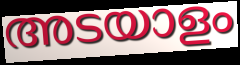
അടയാളം